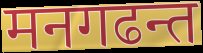
मनगढन्त